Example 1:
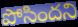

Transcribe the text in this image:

పోసిందని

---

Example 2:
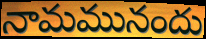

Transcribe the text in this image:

నామమునందు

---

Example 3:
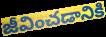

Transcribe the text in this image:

జీవించడానికి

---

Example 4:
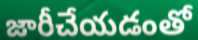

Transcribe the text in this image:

జారీచేయడంతో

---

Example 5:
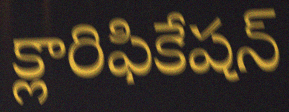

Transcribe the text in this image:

క్లారిఫికేషన్